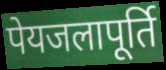
पेयजलापूर्ति